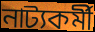
নাট্যকৰ্মী